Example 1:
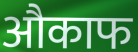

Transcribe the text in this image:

औकाफ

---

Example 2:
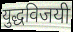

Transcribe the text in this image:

युद्धविजयी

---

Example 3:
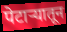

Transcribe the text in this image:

पेटाऱ्यातून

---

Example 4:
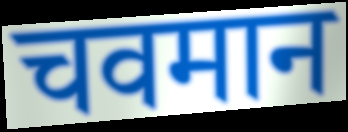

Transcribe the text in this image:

चवमान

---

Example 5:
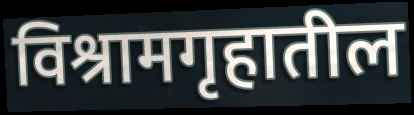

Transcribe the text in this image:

विश्रामगृहातील